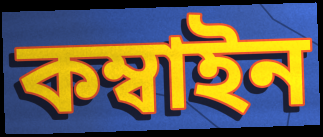
কম্বাইন